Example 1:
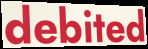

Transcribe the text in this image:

debited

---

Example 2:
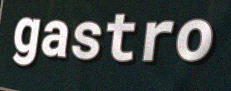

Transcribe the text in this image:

gastro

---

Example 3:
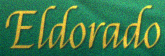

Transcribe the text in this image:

Eldorado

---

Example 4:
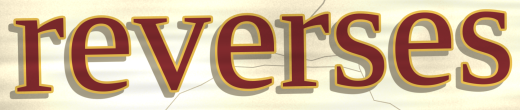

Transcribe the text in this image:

reverses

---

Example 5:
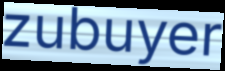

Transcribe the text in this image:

zubuyer